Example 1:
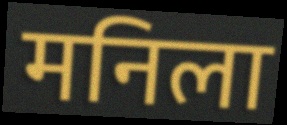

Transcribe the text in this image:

मनिला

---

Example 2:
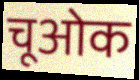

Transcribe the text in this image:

चूओक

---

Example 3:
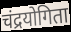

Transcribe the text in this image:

चंद्रयोगिता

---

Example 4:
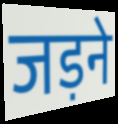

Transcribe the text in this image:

जड़ने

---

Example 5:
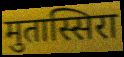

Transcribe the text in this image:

मुतास्सिरा